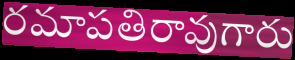
రమాపతిరావుగారు